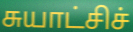
சுயாட்சிச்